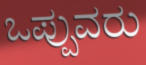
ಒಪ್ಪುವರು